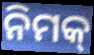
ନିମକ୍